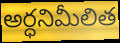
అర్ధనిమీలిత